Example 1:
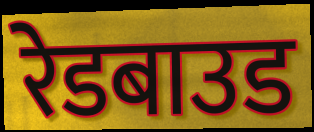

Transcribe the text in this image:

रेडबाउड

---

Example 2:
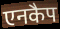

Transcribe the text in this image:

एनकैप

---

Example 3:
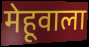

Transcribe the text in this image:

मेहूवाला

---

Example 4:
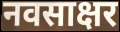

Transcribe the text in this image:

नवसाक्षर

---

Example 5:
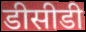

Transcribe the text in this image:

डीसीडी